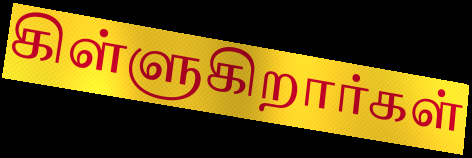
கிள்ளுகிறார்கள்